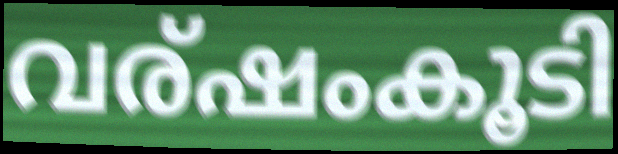
വര്ഷംകൂടി